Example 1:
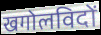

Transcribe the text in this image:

खगोलविदों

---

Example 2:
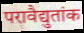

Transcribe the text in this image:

परावैद्युतांक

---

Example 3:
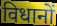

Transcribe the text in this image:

विधानों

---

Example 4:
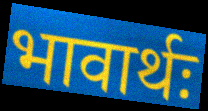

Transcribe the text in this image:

भावार्थः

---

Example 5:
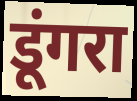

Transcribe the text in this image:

डूंगरा